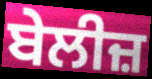
ਬੇਲੀਜ਼